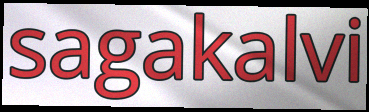
sagakalvi